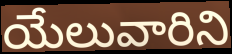
యేలువారిని